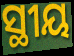
ସ୍ଥୀୟ